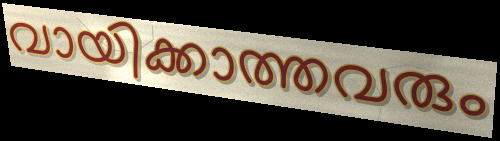
വായിക്കാത്തവരും